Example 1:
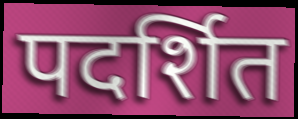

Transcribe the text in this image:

पदर्शित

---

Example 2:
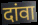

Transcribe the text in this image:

दांवा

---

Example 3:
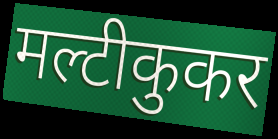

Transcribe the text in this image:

मल्टीकुकर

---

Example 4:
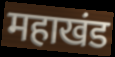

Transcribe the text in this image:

महाखंड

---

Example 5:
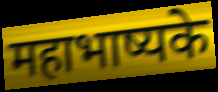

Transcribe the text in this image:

महाभाष्यके